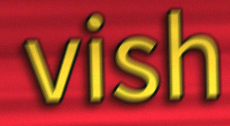
vish